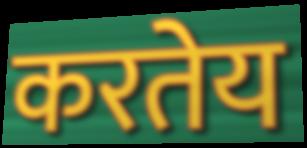
करतेय